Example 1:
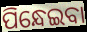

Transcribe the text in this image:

ପିନ୍ଧେଇବା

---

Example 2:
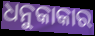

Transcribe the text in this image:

ଧନୁକାକାର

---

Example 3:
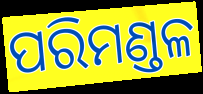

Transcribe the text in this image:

ପରିମଣ୍ଡଳ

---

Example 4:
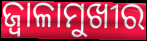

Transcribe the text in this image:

ଜ୍ୱାଳାମୁଖୀର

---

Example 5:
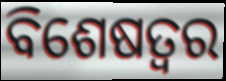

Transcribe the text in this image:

ବିଶେଷତ୍ବର